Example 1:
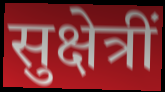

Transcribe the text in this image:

सुक्षेत्रीं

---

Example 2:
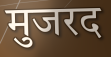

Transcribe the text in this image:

मुजरद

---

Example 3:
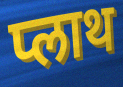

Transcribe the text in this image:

प्लाथ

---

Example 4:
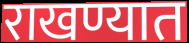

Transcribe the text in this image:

राखण्यात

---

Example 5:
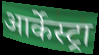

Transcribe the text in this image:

आर्केस्ट्रा